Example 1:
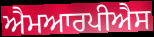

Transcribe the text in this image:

ਐਮਆਰਪੀਐਸ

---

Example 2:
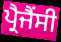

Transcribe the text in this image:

ਪ੍ਰੈਜੈਂਸੀ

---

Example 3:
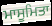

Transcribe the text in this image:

ਮਾਸੂਮਿਤਾ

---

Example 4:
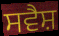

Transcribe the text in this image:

ਸਵੈਸ਼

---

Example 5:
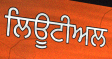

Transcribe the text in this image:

ਲਿਊਟੀਅਲ